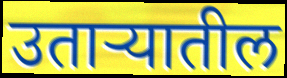
उताऱ्यातील